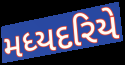
મધ્યદરિયે